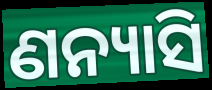
ଣନ୍ୟାସି